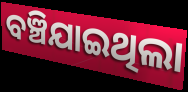
ବଞ୍ଚିଯାଇଥିଲା